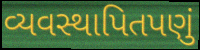
વ્યવસ્થાપિતપણું